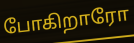
போகிறாரோ